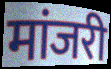
मांजरी